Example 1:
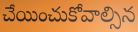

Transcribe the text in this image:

చేయించుకోవాల్సిన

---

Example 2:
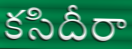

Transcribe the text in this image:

కసిదీరా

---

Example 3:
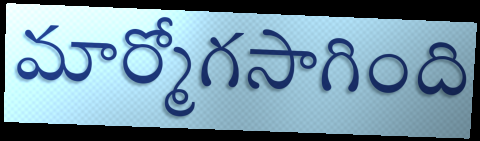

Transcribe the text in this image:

మార్మోగసాగింది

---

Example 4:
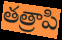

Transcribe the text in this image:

తత్రాపి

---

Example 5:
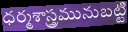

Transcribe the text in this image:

ధర్మశాస్త్రమునుబట్టి